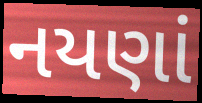
નયણાં